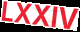
LXXIV